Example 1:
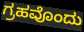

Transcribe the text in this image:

ಗ್ರಹವೊಂದು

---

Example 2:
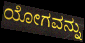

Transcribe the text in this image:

ಯೋಗವನ್ನು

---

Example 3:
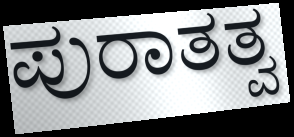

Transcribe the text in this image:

ಪುರಾತತ್ವ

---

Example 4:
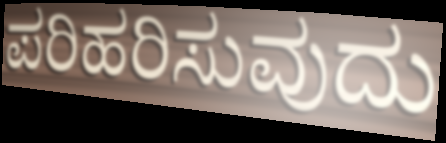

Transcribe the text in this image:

ಪರಿಹರಿಸುವುದು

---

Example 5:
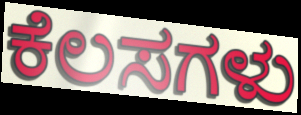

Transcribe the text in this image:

ಕೆಲಸಗಳು